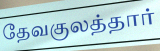
தேவகுலத்தார்